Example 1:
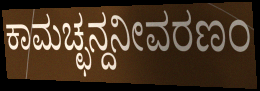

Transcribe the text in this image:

ಕಾಮಚ್ಛನ್ದನೀವರಣಂ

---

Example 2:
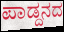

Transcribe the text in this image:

ಪಾಡ್ದನದ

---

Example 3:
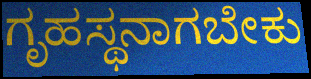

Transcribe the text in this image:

ಗೃಹಸ್ಥನಾಗಬೇಕು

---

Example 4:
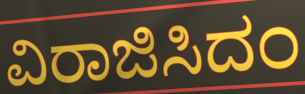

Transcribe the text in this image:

ವಿರಾಜಿಸಿದಂ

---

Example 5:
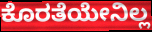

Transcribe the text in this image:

ಕೊರತೆಯೇನಿಲ್ಲ